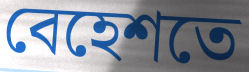
বেহেশতে